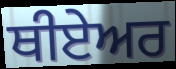
ਥੀਏਅਰ